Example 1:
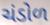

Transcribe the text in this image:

ચંડોળ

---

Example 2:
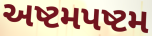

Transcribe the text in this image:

અષ્ટમપષ્ટમ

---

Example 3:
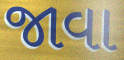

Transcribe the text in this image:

જાવા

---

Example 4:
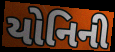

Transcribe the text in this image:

યોનિની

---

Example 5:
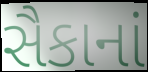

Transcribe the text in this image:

સૈકાનાં